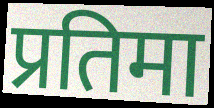
प्रतिमा